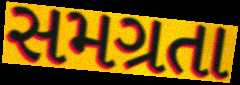
સમગ્રતા